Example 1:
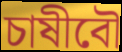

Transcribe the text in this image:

চাষীবৌ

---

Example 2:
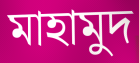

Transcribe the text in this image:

মাহামুদ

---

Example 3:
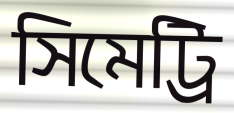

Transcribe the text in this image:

সিমেট্রি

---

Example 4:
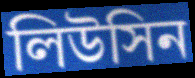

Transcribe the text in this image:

লিউসিন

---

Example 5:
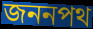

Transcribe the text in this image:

জননপথ